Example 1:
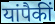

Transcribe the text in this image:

यांपैकीं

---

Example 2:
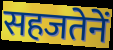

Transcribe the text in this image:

सहजतेनें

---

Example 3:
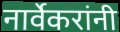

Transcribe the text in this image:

नार्वेकरांनी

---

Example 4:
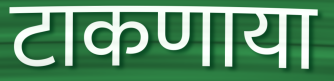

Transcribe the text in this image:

टाकणाया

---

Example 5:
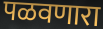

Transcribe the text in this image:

पळवणारा